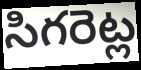
సిగరెట్ల